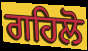
ਗਹਿਲੋ